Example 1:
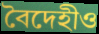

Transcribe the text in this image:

বৈদেহীও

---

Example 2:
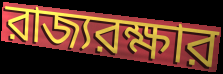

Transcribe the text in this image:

রাজ্যরক্ষার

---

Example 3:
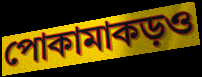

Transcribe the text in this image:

পোকামাকড়ও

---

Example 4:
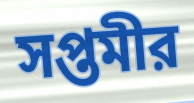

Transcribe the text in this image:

সপ্তমীর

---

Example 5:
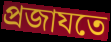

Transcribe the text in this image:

প্রজাযতে